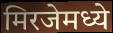
मिरजेमध्ये